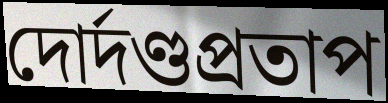
দোর্দণ্ডপ্রতাপ